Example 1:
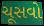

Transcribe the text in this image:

ચૂસવો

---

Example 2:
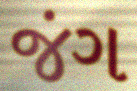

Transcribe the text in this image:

જંગ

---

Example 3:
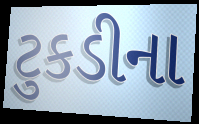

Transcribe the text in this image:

ટુકડીના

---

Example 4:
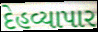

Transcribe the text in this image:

દેહવ્યાપાર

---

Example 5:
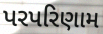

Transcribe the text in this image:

પરપરિણામ